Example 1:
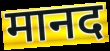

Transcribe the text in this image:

मानद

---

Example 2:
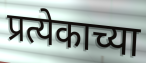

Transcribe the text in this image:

प्रत्येकाच्या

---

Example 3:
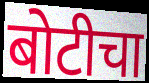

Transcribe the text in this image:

बोटीचा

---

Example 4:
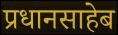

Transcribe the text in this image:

प्रधानसाहेब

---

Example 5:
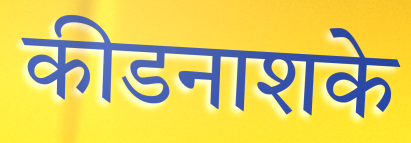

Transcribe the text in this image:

कीडनाशके